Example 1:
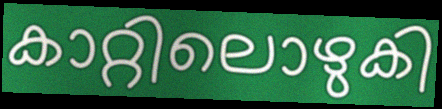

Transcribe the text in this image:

കാറ്റിലൊഴുകി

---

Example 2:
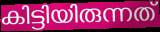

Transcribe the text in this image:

കിട്ടിയിരുന്നത്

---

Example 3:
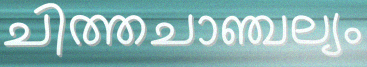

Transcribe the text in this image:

ചിത്തചാഞ്ചല്യം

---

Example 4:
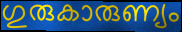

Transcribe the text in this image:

ഗുരുകാരുണ്യം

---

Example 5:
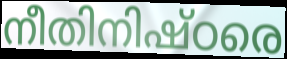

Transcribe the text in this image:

നീതിനിഷ്ഠരെ